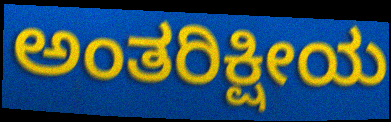
ಅಂತರಿಕ್ಷೀಯ